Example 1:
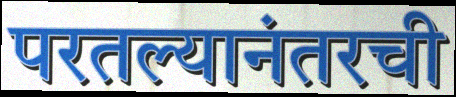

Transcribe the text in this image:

परतल्यानंतरची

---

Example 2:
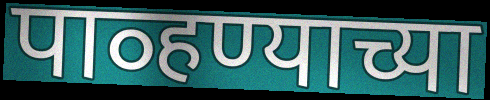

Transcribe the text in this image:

पाव्हण्याच्या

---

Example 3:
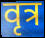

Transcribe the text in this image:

वृत्र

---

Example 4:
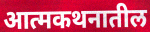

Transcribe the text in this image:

आत्मकथनातील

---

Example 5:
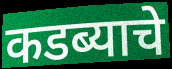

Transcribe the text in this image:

कडब्याचे